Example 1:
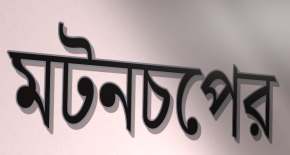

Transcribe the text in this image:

মটনচপের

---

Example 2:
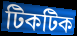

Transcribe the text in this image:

টিকটিক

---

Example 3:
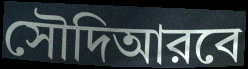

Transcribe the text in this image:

সৌদিআরবে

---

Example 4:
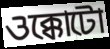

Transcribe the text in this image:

ওক্কোটো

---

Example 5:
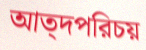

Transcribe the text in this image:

আত্দপরিচয়